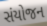
સંયોજન